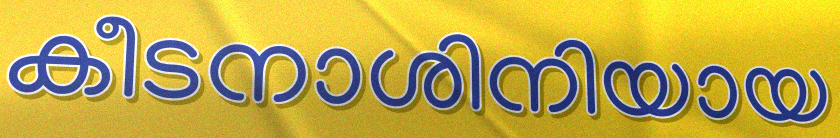
കീടനാശിനിയായ